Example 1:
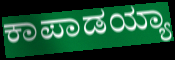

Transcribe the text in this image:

ಕಾಪಾಡಯ್ಯಾ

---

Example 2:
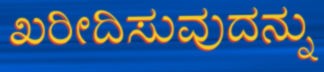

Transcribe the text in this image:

ಖರೀದಿಸುವುದನ್ನು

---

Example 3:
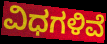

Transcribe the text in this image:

ವಿಧಗಳಿವೆ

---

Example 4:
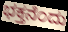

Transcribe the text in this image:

ಭಕ್ತನೆಂದು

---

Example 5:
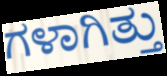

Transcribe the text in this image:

ಗಳಾಗಿತ್ತು